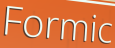
Formic